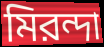
মিরন্দা